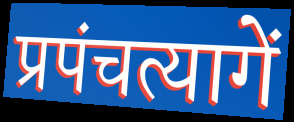
प्रपंचत्यागें